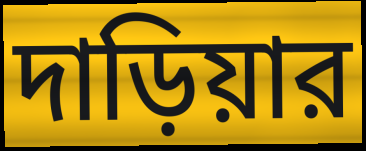
দাড়িয়ার